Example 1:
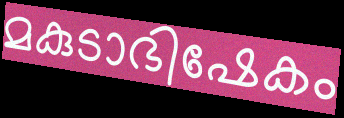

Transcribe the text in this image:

മകുടാഭിഷേകം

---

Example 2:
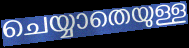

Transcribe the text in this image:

ചെയ്യാതെയുള്ള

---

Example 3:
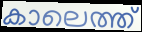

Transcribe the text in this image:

കാലെത്ത്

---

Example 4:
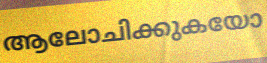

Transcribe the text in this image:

ആലോചിക്കുകയോ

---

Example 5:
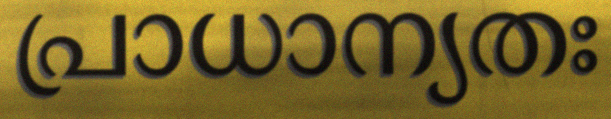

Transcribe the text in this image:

പ്രാധാന്യതഃ